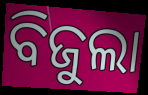
ବିଜୁଲା